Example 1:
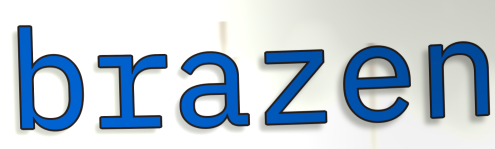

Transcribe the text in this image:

brazen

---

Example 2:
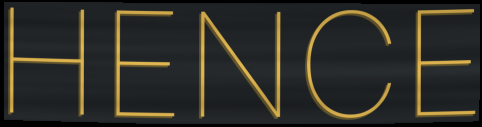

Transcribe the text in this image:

HENCE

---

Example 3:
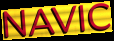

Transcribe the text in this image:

NAVIC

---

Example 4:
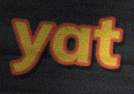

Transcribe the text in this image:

yat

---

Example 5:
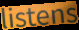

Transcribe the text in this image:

listens